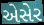
એસેર